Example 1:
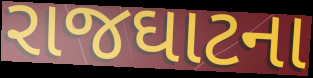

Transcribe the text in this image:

રાજઘાટના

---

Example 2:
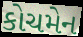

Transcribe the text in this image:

કોચમેન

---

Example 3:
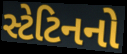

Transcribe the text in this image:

સ્ટેટિનનો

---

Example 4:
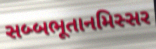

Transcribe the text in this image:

સબ્બભૂતાનમિસ્સર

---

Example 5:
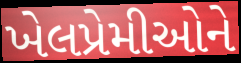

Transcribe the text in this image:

ખેલપ્રેમીઓને